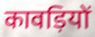
कावड़ियों